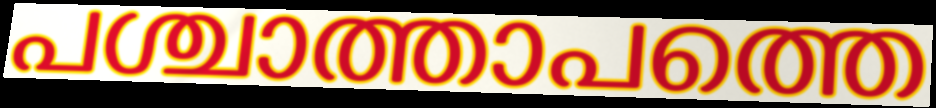
പശ്ചാത്താപത്തെ